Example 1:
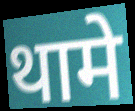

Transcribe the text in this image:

थामे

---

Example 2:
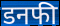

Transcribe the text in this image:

डनफी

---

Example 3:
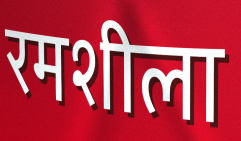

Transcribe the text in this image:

रमशीला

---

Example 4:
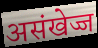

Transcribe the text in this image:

असंखेज्ज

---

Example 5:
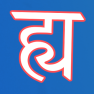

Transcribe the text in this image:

ह्य